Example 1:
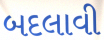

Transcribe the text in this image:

બદલાવી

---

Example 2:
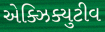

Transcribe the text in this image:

એક્ઝિક્યુટીવ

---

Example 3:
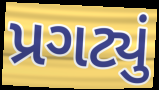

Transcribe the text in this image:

પ્રગટ્યું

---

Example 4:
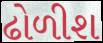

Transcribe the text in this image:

ઢોળીશ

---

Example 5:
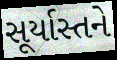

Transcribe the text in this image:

સૂર્યાસ્તને